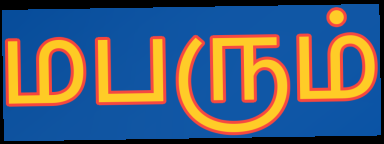
மபரும்